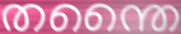
തന്തൈ